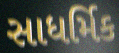
સાધર્મિક